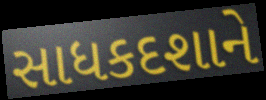
સાધકદશાને